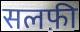
सलफ़ी